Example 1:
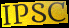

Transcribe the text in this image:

IPSC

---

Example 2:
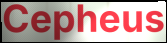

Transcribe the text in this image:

Cepheus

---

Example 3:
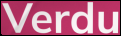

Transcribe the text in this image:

Verdu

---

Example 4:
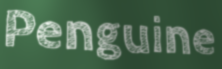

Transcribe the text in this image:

Penguine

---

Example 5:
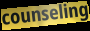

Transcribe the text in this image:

counseling